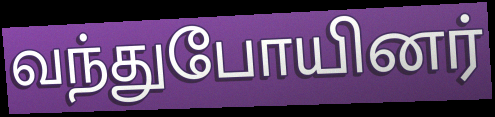
வந்துபோயினர்